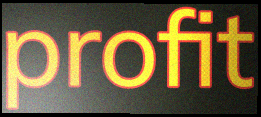
profit